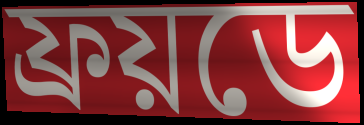
ফ্ৰয়ডে